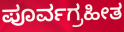
ಪೂರ್ವಗ್ರಹೀತ